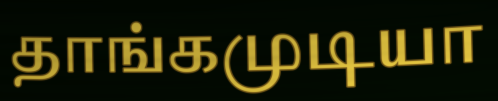
தாங்கமுடியா